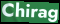
Chirag